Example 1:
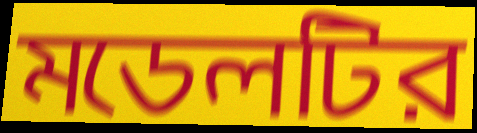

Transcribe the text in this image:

মডেলটির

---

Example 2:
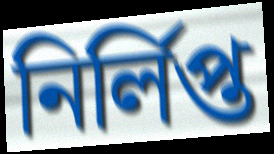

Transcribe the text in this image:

নির্লিপ্ত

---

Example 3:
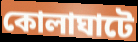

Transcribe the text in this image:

কোলাঘাটে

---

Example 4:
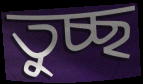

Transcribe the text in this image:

তুচ্ছ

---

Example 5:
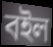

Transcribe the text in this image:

বইল